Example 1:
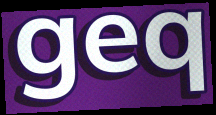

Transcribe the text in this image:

geq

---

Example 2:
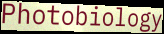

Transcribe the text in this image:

Photobiology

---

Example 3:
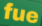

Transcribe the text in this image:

fue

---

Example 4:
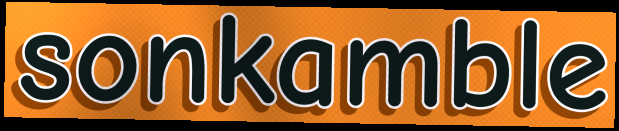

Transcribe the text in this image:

sonkamble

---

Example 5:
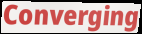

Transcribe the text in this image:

Converging